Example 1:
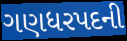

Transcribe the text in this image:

ગણધરપદની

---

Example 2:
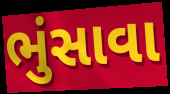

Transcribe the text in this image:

ભુંસાવા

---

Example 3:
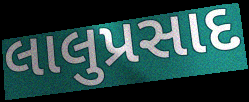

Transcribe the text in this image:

લાલુપ્રસાદ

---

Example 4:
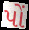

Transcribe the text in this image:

પોં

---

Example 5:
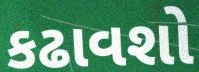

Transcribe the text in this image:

કઢાવશો